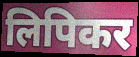
लिपिकर